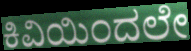
ಕಿವಿಯಿಂದಲೇ